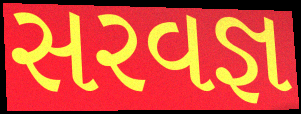
સરવજ્ઞ